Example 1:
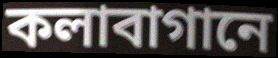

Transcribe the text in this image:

কলাবাগানে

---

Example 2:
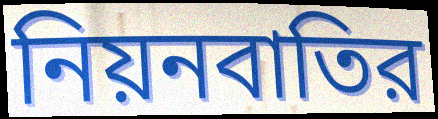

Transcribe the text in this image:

নিয়নবাতির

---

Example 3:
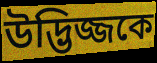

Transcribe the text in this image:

উদ্ভিজ্জকে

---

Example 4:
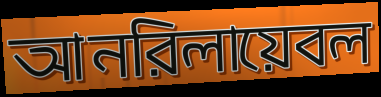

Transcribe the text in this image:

আনরিলায়েবল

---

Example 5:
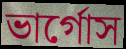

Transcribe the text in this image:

ভার্গোস